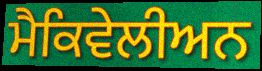
ਮੈਕਿਵੇਲੀਅਨ